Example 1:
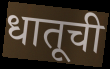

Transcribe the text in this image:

धातूची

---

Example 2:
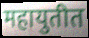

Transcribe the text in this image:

महायुतीत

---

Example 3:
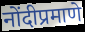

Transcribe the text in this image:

नोंदीप्रमाणे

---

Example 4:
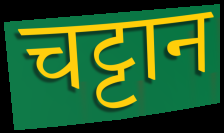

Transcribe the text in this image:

चट्टान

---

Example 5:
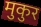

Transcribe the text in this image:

मुकुर